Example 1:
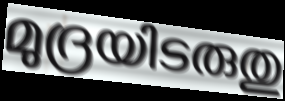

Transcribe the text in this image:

മുദ്രയിടരുതു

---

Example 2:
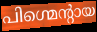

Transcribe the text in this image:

പിഗ്മെന്റായ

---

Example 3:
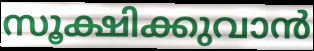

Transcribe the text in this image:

സൂക്ഷിക്കുവാൻ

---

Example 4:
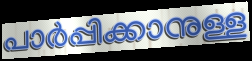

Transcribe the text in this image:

പാർപ്പിക്കാനുള്ള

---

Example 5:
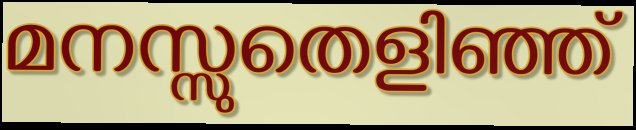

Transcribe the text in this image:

മനസ്സുതെളിഞ്ഞ്